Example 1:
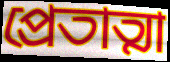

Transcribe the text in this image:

প্রেতাত্মা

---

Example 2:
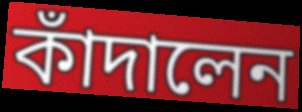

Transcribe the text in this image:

কাঁদালেন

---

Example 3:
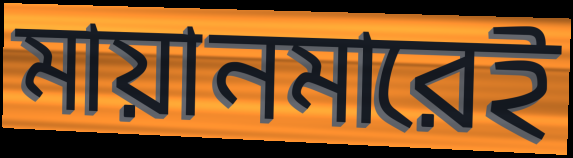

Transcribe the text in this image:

মায়ানমারেই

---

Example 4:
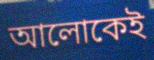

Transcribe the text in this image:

আলোকেই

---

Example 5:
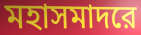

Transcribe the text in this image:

মহাসমাদরে